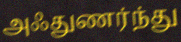
அஃதுணர்ந்து